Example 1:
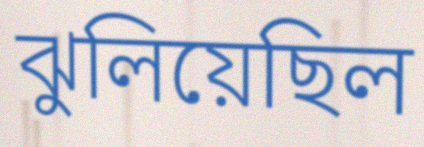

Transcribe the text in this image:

ঝুলিয়েছিল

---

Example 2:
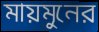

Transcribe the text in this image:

মায়মুনের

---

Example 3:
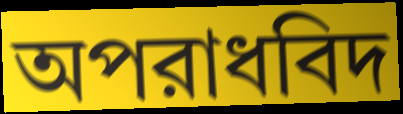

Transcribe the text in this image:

অপরাধবিদ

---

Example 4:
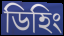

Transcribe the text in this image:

ডিহিং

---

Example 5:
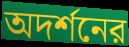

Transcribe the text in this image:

অদর্শনের